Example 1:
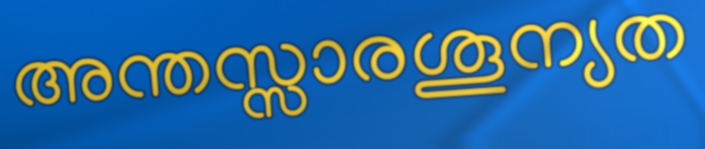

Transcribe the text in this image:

അന്തസ്സാരശൂന്യത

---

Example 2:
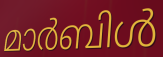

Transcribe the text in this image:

മാർബിൾ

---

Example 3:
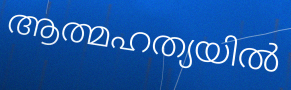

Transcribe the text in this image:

ആത്മഹത്യയിൽ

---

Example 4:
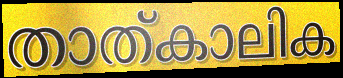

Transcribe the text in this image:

താത്കാലിക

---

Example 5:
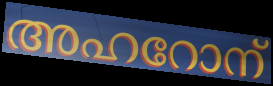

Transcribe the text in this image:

അഹറോന്